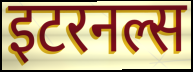
इटरनल्स